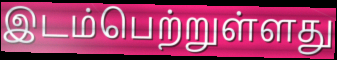
இடம்பெற்றுள்ளது